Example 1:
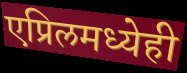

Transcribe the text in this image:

एप्रिलमध्येही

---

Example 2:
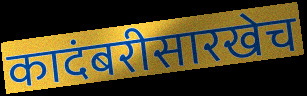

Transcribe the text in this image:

कादंबरीसारखेच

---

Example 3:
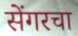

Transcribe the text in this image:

सेंगरचा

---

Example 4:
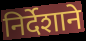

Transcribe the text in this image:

निर्देशाने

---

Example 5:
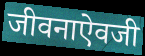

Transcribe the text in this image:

जीवनाऐवजी